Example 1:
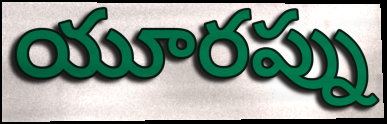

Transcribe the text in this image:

యూరప్ను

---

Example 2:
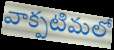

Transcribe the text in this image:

వాక్పటిమలో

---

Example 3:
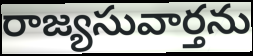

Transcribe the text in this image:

రాజ్యసువార్తను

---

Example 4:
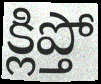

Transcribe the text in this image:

క్లిప్తో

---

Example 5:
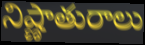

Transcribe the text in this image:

నిష్ణాతురాలు